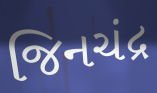
જિનચંદ્ર